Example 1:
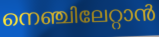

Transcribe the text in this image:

നെഞ്ചിലേറ്റാൻ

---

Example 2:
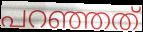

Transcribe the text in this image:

പറഞ്ഞത്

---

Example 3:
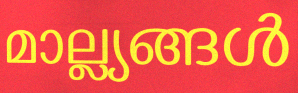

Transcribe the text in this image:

മാല്ല്യങ്ങൾ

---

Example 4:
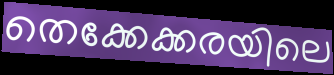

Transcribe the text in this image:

തെക്കേക്കരയിലെ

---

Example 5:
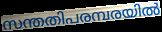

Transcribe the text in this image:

സന്തതിപരമ്പരയിൽ